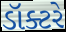
ડૉક્ટરે